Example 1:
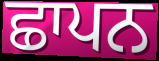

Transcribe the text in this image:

ਛਾਪਨ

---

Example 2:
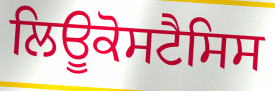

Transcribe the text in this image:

ਲਿਊਕੋਸਟੈਸਿਸ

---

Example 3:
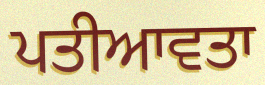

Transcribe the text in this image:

ਪਤੀਆਵਤਾ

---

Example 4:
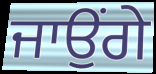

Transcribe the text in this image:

ਜਾਉਂਗੇ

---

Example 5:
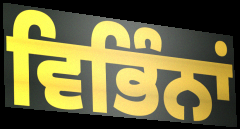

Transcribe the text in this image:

ਵਿਭਿੰਨਾਂ